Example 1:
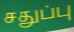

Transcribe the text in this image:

சதுப்பு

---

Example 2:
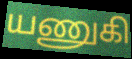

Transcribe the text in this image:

யணுகி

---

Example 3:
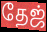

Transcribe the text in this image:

தேஜ்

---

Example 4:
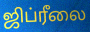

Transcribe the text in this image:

ஜிப்ரீலை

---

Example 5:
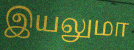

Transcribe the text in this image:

இயலுமா